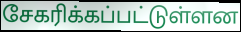
சேகரிக்கப்பட்டுள்ளன